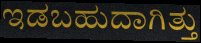
ಇಡಬಹುದಾಗಿತ್ತು